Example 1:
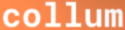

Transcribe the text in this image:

collum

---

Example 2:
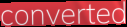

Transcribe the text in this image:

converted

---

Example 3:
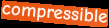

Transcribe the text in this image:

compressible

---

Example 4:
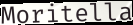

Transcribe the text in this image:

Moritella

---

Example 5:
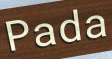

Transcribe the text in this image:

Pada